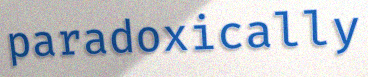
paradoxically